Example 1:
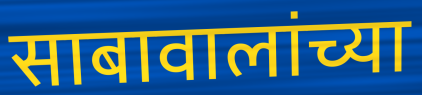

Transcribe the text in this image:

साबावालांच्या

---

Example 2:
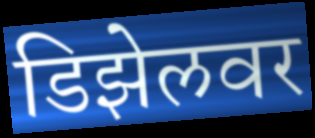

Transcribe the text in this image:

डिझेलवर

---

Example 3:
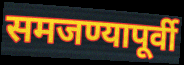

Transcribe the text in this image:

समजण्यापूर्वी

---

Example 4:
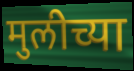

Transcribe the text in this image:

मुलीच्‍या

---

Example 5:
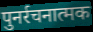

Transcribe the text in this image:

पुनर्रचनात्मक